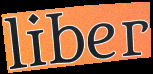
liber